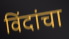
विंदांचा